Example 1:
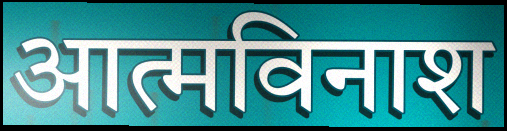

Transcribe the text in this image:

आत्मविनाश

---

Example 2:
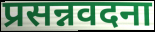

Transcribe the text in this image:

प्रसन्नवदना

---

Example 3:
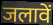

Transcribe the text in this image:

जलावें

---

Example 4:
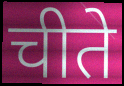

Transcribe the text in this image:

चीते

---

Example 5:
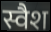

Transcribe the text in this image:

स्वैश